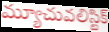
మ్యూచువలిస్టిక్